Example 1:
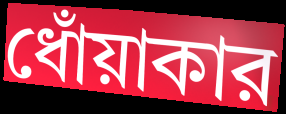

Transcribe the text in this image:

ধোঁয়াকার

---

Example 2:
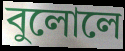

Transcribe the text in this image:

বুলোলে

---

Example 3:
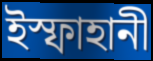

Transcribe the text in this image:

ইস্ফাহানী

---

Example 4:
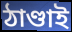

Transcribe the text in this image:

ঠাণ্ডাই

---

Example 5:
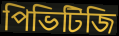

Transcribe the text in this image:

পিভিটিজি